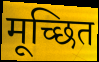
मूच्छित